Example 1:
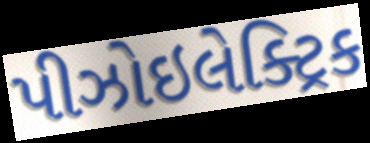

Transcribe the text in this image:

પીઝોઇલેક્ટ્રિક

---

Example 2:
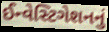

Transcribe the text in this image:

ઈન્વેસ્ટિગેશનનું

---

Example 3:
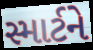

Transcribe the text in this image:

સ્માર્ટને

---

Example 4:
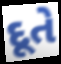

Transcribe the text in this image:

દૂતે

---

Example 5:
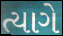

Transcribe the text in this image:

ત્યાગે